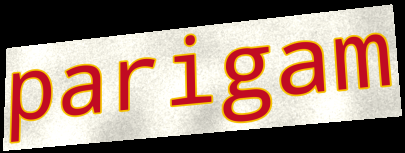
parigam